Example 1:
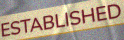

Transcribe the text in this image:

ESTABLISHED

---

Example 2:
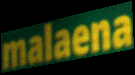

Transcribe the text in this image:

malaena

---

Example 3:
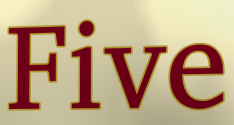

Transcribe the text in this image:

Five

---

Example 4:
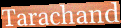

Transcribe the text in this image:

Tarachand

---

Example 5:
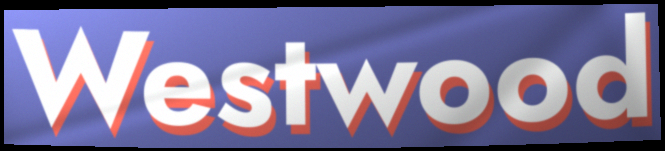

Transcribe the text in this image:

Westwood